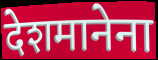
देशमानेना